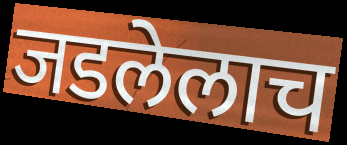
जडलेलाच